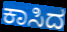
ಕಾಸಿದ